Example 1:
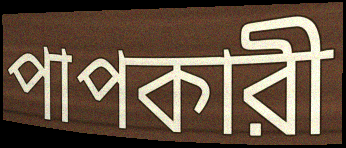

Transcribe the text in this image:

পাপকারী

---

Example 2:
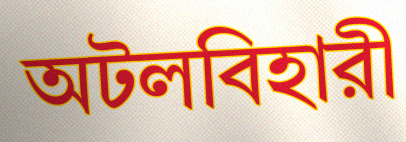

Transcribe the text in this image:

অটলবিহারী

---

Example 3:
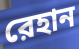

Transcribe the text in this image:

রেহান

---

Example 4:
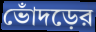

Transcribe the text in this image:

ভোঁদড়ের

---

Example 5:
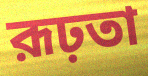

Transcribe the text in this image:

রূঢ়তা